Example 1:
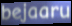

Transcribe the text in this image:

bejaaru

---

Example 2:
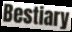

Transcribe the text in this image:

Bestiary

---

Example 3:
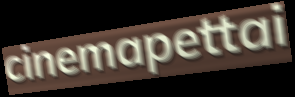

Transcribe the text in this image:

cinemapettai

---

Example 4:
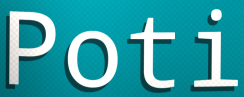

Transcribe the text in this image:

Poti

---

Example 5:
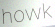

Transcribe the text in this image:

howk